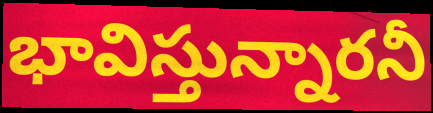
భావిస్తున్నారనీ